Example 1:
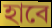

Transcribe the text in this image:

হাবে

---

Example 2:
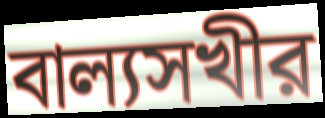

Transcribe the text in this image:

বাল্যসখীর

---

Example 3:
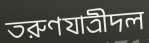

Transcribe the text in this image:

তরুণযাত্রীদল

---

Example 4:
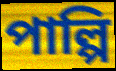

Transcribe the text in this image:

পাল্পি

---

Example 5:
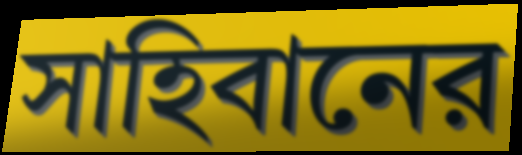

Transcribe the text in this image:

সাহিবানের